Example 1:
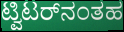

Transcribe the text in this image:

ಟ್ವಿಟರ್‌ನಂತಹ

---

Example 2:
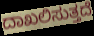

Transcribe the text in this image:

ದಾಖಲಿಸುತ್ತದೆ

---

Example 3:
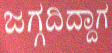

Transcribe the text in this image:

ಜಗ್ಗದಿದ್ದಾಗ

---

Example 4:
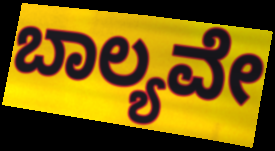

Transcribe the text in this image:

ಬಾಲ್ಯವೇ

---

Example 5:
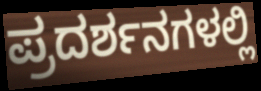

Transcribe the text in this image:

ಪ್ರದರ್ಶನಗಳಲ್ಲಿ